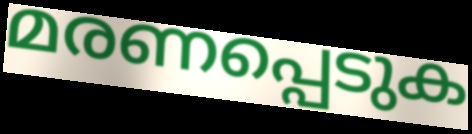
മരണപ്പെടുക